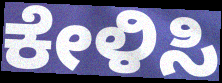
ಕೇಳಿಸಿ